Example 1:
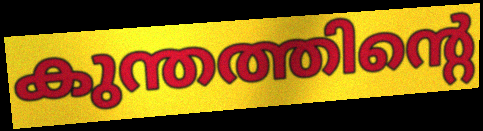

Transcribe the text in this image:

കുന്തത്തിന്റെ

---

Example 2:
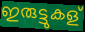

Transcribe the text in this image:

ഇരുട്ടുകള്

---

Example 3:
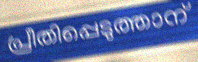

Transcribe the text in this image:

പ്രീതിപ്പെടുത്താന്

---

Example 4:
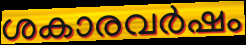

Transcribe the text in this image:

ശകാരവർഷം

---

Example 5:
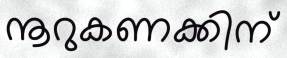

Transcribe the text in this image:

നൂറുകണക്കിന്